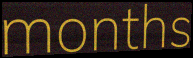
months